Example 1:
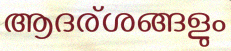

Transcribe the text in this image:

ആദര്ശങ്ങളും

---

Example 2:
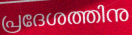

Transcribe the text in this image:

പ്രദേശത്തിനു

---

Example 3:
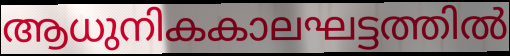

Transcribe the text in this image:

ആധുനികകാലഘട്ടത്തിൽ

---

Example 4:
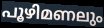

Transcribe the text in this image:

പൂഴിമണലും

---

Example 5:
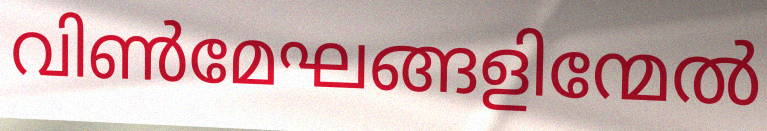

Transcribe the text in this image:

വിൺമേഘങ്ങളിന്മേൽ